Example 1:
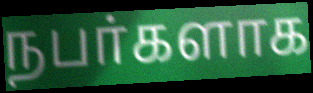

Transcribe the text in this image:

நபர்களாக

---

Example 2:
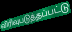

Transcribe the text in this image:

விரிவுபடுத்தப்பட்டு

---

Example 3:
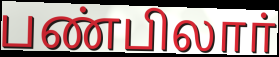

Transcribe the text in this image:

பண்பிலார்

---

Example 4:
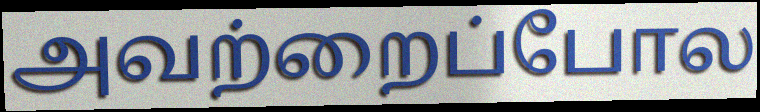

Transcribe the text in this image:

அவற்றைப்போல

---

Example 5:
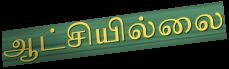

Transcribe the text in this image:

ஆட்சியில்லை